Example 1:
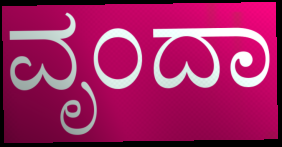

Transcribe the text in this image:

ವೃಂದಾ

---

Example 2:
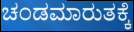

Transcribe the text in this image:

ಚಂಡಮಾರುತಕ್ಕೆ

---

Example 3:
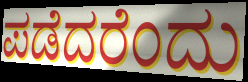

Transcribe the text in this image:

ಪಡೆದರೆಂದು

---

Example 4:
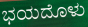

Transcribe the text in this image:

ಭಯದೊಳು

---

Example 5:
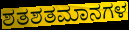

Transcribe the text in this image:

ಶತಶತಮಾನಗಳ